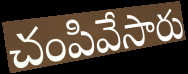
చంపివేసారు